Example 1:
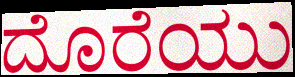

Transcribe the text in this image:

ದೊರೆಯು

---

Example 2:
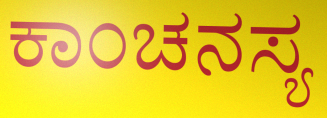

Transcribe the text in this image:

ಕಾಂಚನಸ್ಯ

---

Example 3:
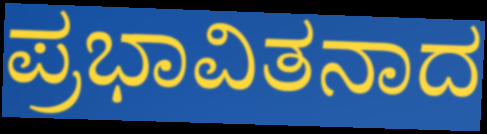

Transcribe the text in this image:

ಪ್ರಭಾವಿತನಾದ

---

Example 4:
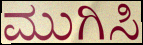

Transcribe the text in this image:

ಮುಗಿಸಿ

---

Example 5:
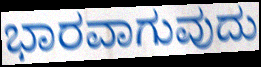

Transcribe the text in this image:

ಭಾರವಾಗುವುದು